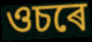
ওচৰে